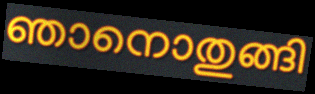
ഞാനൊതുങ്ങി